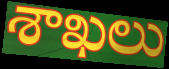
శాఖలు